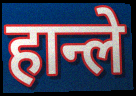
हान्ले